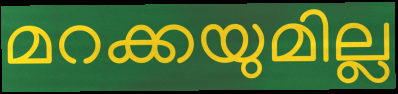
മറക്കയുമില്ല